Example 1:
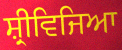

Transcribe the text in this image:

ਸ਼੍ਰੀਵਿਜਿਆ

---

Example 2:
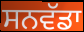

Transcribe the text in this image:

ਸਨਵੱਡਾ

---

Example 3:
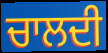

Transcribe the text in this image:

ਚਾਲਦੀ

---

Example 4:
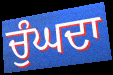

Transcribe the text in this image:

ਚੁੰਘਦਾ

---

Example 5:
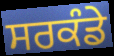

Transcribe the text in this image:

ਸਰਕੰਡੇ